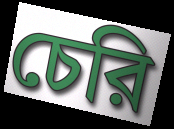
চেরি